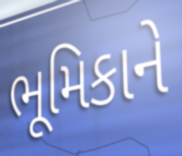
ભૂમિકાને